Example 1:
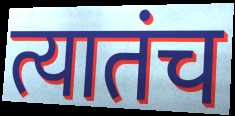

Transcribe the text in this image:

त्यातंच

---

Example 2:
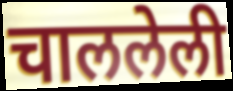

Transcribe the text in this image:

चाललेली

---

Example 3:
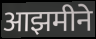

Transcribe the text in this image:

आझमीने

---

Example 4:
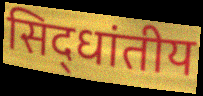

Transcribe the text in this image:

सिद्धांतीय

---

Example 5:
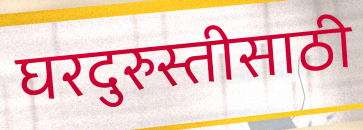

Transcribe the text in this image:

घरदुरुस्तीसाठी